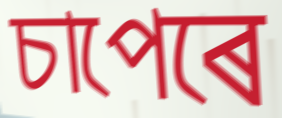
চাপেৰে